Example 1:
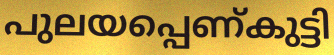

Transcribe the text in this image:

പുലയപ്പെണ്കുട്ടി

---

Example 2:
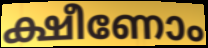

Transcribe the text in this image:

ക്ഷീണോം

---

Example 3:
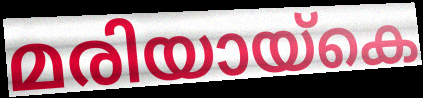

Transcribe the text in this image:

മരിയായ്കെ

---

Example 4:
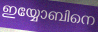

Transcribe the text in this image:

ഇയ്യോബിനെ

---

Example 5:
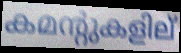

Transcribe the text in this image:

കമന്റുകളില്